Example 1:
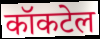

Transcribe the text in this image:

कॉकटेल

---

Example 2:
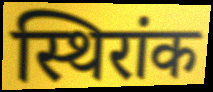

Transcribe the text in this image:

स्थिरांक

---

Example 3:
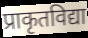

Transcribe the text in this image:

प्राकृतविद्या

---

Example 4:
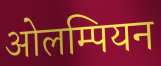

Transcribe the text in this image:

ओलम्पियन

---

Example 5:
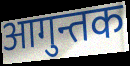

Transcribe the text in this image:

आगुन्तक